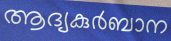
ആദ്യകുർബാന